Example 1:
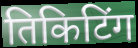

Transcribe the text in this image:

तिकिटिंग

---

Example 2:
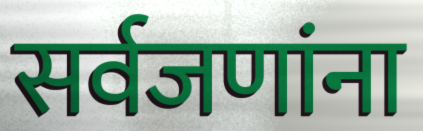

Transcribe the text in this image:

सर्वजणांना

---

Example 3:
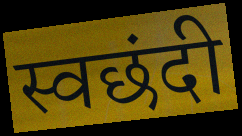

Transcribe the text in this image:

स्वछंदी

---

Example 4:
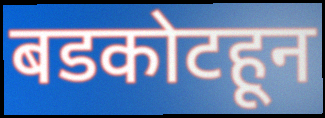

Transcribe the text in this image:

बडकोटहून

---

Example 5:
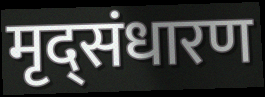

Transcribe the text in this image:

मृद्संधारण